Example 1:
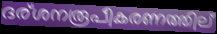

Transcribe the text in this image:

ദര്ശനരൂപീകരണത്തില്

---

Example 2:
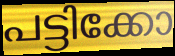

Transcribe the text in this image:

പട്ടിക്കോ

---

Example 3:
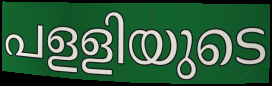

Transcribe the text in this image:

പളളിയുടെ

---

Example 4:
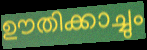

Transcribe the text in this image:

ഊതിക്കാച്ചും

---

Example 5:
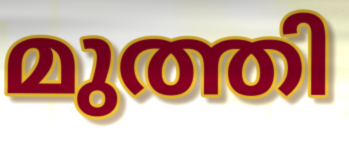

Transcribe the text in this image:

മുത്തി